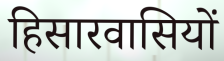
हिसारवासियों